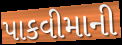
પાકવીમાની